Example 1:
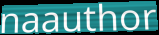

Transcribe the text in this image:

naauthor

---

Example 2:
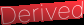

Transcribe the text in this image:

Derived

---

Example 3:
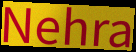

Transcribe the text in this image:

Nehra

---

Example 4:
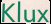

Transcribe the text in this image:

Klux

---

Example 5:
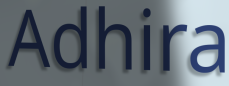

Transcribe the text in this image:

Adhira